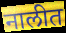
नालीत